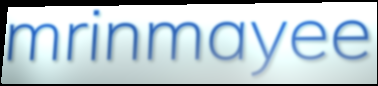
mrinmayee